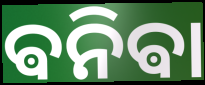
ଵନିଵା